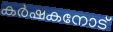
കർഷകനോട്